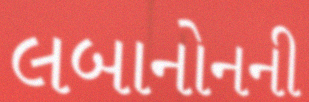
લબાનોનની